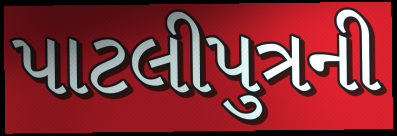
પાટલીપુત્રની